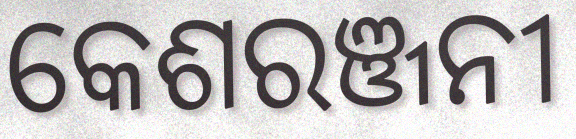
କେଶରଞ୍ଜନୀ